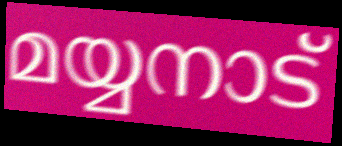
മയ്യനാട്